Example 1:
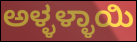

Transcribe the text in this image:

ಅಳ್ಳಳ್ಳಾಯಿ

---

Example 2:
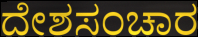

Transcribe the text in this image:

ದೇಶಸಂಚಾರ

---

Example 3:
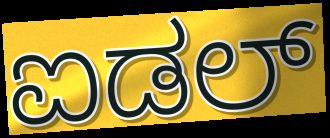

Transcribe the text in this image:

ಐಡಲ್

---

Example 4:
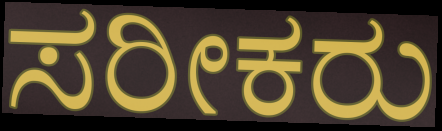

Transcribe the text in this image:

ಸರೀಕರು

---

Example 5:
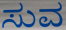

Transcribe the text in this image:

ಸುವ